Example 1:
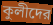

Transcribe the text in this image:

কুলীদের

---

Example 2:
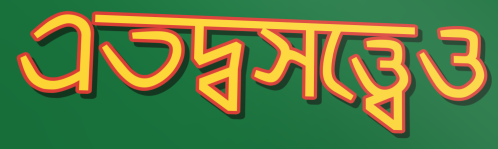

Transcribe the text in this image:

এতদ্বসত্ত্বেও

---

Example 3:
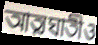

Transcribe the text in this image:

আত্মঘাতীও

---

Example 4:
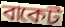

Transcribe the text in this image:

বাকেট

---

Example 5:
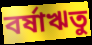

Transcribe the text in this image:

বর্ষাঋতু